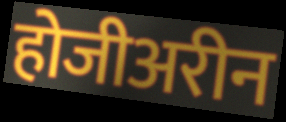
होजीअरीन